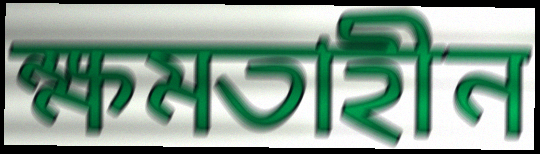
ক্ষমতাহীন